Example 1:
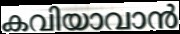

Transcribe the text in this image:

കവിയാവാൻ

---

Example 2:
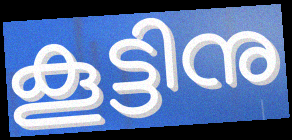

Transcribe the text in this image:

കൂട്ടിനു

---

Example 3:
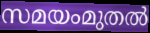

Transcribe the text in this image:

സമയംമുതൽ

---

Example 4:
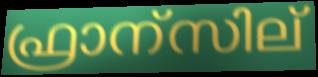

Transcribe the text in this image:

ഫ്രാന്സില്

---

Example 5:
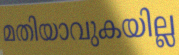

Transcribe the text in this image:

മതിയാവുകയില്ല